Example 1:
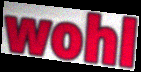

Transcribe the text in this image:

wohl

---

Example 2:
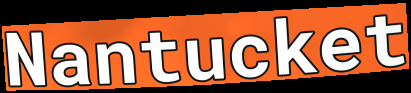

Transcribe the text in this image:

Nantucket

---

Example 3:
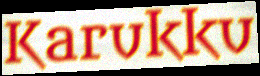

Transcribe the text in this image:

Karukku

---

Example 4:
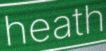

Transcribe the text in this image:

heath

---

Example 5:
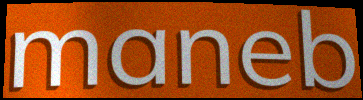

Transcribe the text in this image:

maneb